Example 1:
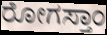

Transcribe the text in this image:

ರೋಗಸ್ತಾಂ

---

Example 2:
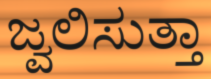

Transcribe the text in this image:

ಜ್ವಲಿಸುತ್ತಾ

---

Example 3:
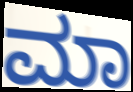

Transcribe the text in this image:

ಮಾ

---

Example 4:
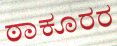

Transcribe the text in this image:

ಠಾಕೂರರ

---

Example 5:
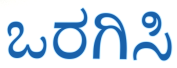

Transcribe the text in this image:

ಒರಗಿಸಿ